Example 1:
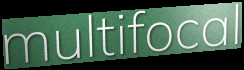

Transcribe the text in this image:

multifocal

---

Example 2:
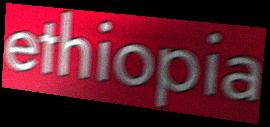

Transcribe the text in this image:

ethiopia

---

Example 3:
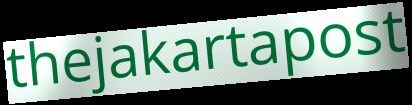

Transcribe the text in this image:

thejakartapost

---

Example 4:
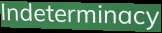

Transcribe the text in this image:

Indeterminacy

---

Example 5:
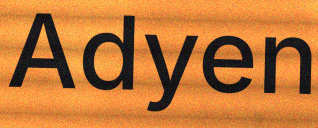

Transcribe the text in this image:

Adyen